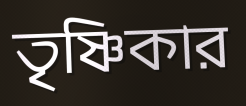
তৃষ্ণিকার